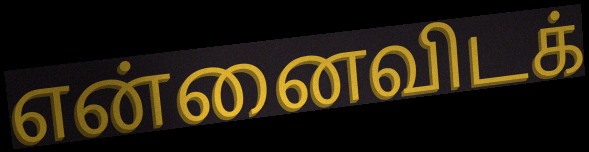
என்னைவிடக்